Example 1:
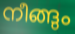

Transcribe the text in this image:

നീങ്ങും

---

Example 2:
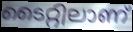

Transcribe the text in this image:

ടൈറ്റിലാണ്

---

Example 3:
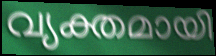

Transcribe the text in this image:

വ്യക്തമായി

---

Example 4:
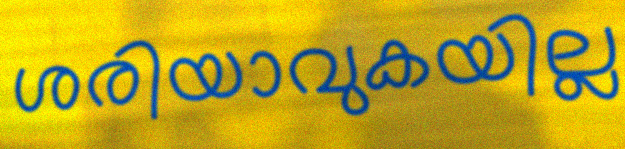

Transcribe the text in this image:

ശരിയാവുകയില്ല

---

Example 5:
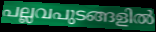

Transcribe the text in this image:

പല്ലവപുടങ്ങളിൽ